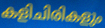
കളിചിരികളും